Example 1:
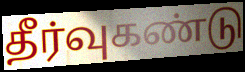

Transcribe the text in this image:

தீர்வுகண்டு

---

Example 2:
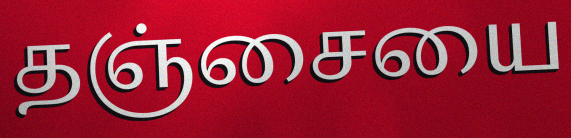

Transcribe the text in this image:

தஞ்சையை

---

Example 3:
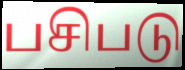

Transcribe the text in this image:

பசிபடு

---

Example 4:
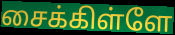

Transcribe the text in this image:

சைக்கிள்ளே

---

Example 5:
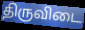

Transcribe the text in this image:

திருவிடை